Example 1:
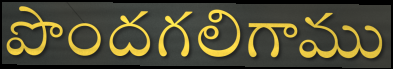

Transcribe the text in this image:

పొందగలిగాము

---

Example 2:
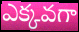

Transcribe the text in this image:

ఎక్కవగా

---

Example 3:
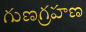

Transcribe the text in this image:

గుణగ్రహణ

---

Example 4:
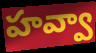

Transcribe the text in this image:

హవ్వా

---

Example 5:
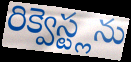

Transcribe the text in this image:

రిక్వెస్ట్లను